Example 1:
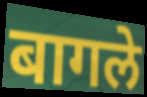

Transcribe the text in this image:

बागले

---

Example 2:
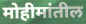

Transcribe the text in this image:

मोहीमांतील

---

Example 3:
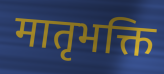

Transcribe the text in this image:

मातृभक्ति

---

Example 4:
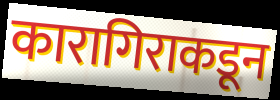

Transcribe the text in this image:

कारागिराकडून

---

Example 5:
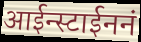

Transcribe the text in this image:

आईन्स्टाईननं